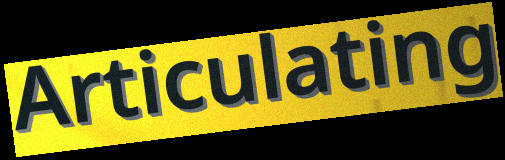
Articulating